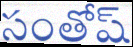
సంతోష్